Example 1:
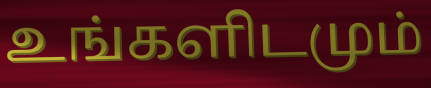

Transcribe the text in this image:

உங்களிடமும்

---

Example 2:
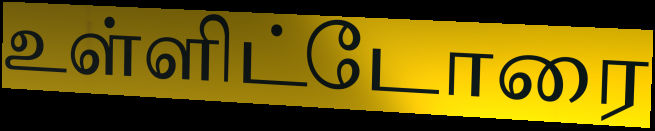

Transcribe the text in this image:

உள்ளிட்டோரை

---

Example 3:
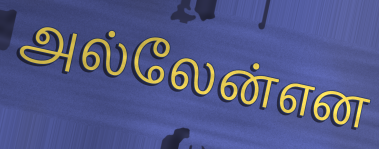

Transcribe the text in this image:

அல்லேன்என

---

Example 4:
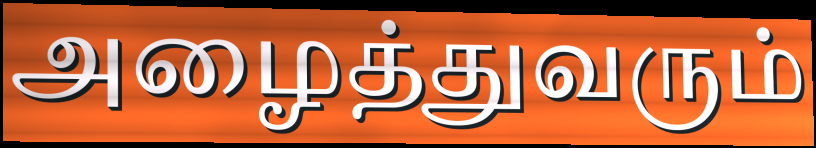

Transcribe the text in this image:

அழைத்துவரும்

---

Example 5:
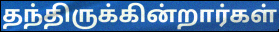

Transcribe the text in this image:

தந்திருக்கின்றார்கள்